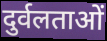
दुर्वलताओं